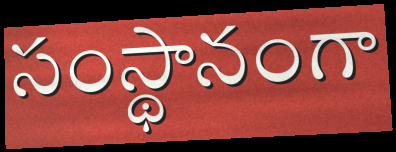
సంస్థానంగా